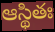
ఆస్థితః